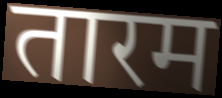
तारम